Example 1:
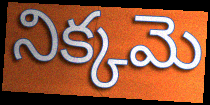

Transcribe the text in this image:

నిక్కమె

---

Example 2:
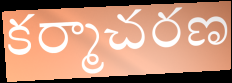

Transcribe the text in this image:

కర్మాచరణ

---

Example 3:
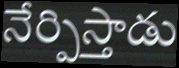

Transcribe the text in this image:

నేర్పిస్తాడు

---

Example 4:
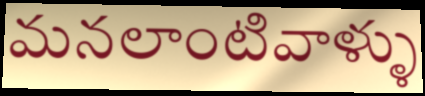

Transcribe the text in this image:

మనలాంటివాళ్ళు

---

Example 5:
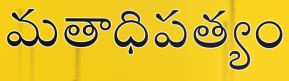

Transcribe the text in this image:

మతాధిపత్యం